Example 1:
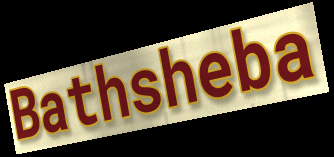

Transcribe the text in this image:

Bathsheba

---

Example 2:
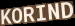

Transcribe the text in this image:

KORIND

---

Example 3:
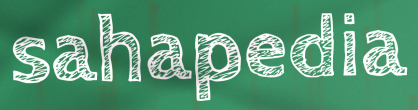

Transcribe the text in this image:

sahapedia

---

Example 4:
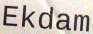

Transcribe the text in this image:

Ekdam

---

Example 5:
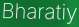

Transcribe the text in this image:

Bharatiy